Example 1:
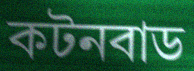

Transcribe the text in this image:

কটনবাড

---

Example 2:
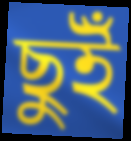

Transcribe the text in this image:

ছুইঁ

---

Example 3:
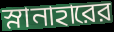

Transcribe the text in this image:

স্নানাহারের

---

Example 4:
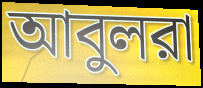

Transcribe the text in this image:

আবুলরা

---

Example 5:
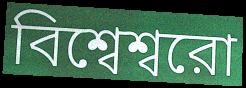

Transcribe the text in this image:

বিশ্বেশ্বরো